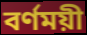
বর্ণময়ী